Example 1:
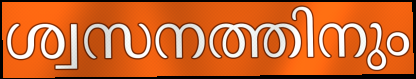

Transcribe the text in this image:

ശ്വസനത്തിനും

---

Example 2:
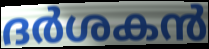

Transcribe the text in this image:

ദർശകൻ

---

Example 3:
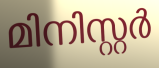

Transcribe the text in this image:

മിനിസ്റ്റർ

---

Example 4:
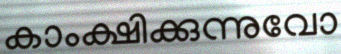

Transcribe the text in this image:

കാംക്ഷിക്കുന്നുവോ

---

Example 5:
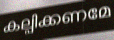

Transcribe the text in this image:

കല്പിക്കണമേ